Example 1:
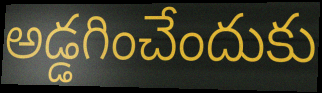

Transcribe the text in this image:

అడ్డగించేందుకు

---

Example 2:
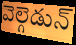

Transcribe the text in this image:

వెల్గెడున్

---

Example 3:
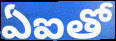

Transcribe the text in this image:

ఏఐతో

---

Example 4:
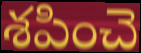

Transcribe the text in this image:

శపించె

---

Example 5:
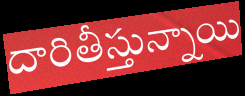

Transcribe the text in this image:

దారితీస్తున్నాయి